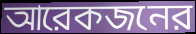
আরেকজনের